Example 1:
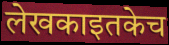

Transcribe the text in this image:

लेखकाइतकेच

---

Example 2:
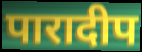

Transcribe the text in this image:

पारादीप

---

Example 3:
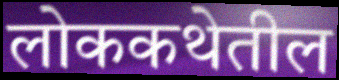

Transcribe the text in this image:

लोककथेतील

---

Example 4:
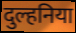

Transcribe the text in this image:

दुल्हनिया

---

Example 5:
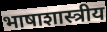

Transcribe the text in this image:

भाषाशास्त्रीय